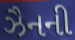
ઝૈનની